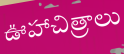
ఊహాచిత్రాలు